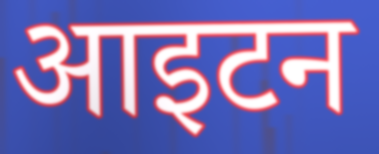
आइटन